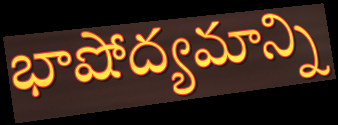
భాషోద్యమాన్ని